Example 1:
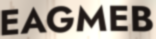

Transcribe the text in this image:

EAGMEB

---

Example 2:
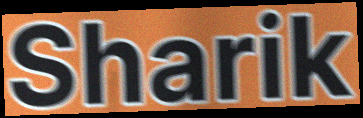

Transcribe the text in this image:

Sharik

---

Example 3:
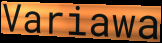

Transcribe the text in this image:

Variawa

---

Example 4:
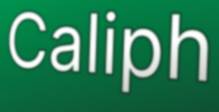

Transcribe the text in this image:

Caliph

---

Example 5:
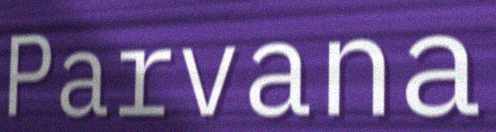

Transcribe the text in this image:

Parvana